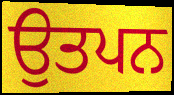
ਉਤਪਨ